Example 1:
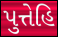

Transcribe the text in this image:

પુત્તેહિ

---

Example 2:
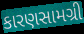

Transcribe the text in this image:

કારણસામગ્રી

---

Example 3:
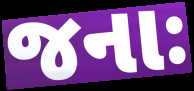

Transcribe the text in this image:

જનાઃ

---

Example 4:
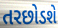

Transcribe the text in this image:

તરછોડશે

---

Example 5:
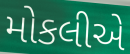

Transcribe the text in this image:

મોકલીએ